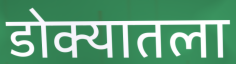
डोक्यातला